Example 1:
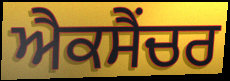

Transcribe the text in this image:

ਐਕਸੈਂਚਰ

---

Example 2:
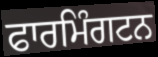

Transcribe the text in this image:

ਫਾਰਮਿੰਗਟਨ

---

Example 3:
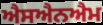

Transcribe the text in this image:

ਐਸਐਨਐਮ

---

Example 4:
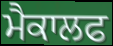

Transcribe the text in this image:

ਮੈਕਾਲਫ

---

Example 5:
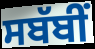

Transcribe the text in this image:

ਸਬੱਬੀਂ